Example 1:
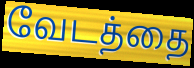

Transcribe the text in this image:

வேடத்தை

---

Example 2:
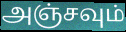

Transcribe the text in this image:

அஞ்சவும்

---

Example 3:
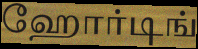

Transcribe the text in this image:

ஹோர்டிங்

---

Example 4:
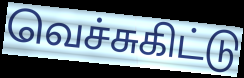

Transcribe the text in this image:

வெச்சுகிட்டு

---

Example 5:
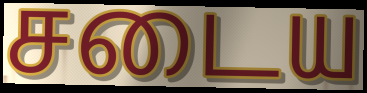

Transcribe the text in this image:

சடைய